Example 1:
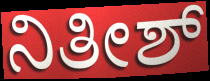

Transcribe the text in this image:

ನಿತೀಶ್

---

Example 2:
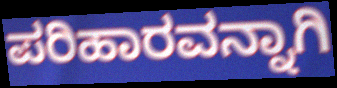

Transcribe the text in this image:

ಪರಿಹಾರವನ್ನಾಗಿ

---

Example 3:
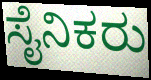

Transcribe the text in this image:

ಸೈನಿಕರು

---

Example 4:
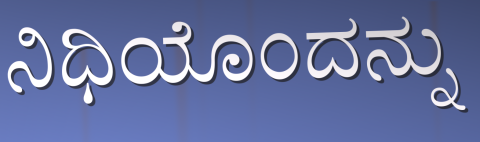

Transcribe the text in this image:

ನಿಧಿಯೊಂದನ್ನು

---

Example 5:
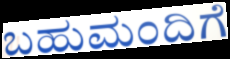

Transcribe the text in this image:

ಬಹುಮಂದಿಗೆ